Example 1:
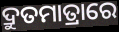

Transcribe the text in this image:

ଦ୍ରୁତମାତ୍ରାରେ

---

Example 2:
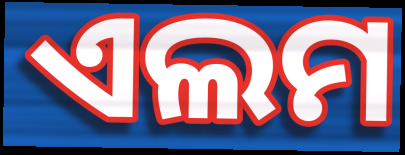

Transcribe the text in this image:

ଏଲମ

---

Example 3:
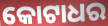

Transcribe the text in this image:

କୋଟାଧର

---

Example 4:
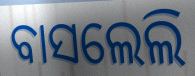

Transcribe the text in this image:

ବାସଲେଲି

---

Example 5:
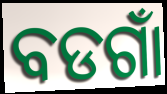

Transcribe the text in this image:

ବଡଗାଁ